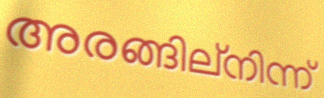
അരങ്ങില്നിന്ന്